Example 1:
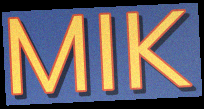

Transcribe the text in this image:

MIK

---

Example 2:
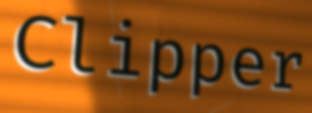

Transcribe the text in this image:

Clipper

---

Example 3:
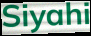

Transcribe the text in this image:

Siyahi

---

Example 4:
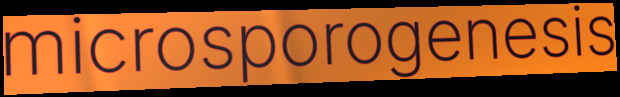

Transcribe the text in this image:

microsporogenesis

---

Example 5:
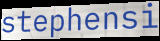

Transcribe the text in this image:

stephensi